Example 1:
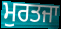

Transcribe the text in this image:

ਮੁਰਤਜਾ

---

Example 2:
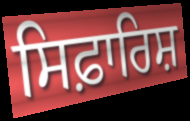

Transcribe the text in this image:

ਸਿਫ਼ਾਰਿਸ਼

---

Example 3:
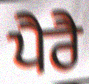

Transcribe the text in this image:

ਪੈਰੈ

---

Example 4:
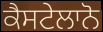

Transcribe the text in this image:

ਕੈਸਟੇਲਾਨੋ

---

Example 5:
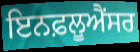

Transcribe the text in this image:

ਇਨਫ਼ਲੂਐਂਸਰ